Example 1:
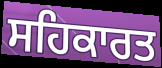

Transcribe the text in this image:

ਸਹਿਕਾਰਤ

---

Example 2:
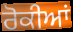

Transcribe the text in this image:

ਰੋਕੀਆਂ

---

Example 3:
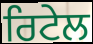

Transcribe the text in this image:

ਰਿਟੇਲ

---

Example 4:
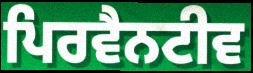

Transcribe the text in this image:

ਪਿਰਵੈਨਟੀਵ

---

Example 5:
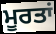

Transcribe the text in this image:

ਮੂਰਤਾਂ